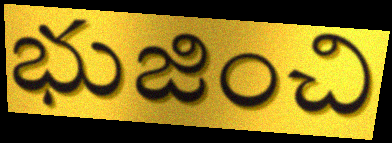
భుజించి